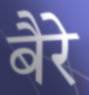
बैरे